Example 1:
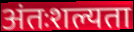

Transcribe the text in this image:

अंतःशल्यता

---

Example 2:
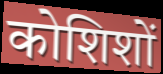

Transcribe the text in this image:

कोशिशों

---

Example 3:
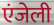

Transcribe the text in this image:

एंजेली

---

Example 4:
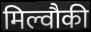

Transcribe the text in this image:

मिल्वौकी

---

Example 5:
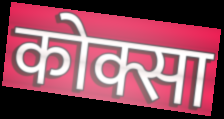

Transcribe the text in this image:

कोक्सा